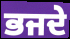
ਭਜਦੇ